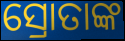
ସ୍ରୋତାଙ୍କ